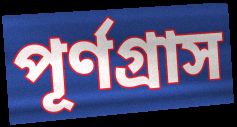
পূর্ণগ্রাস